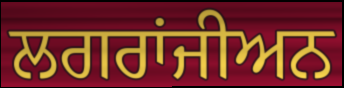
ਲਗਰਾਂਜੀਅਨ